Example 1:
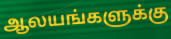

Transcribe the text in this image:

ஆலயங்களுக்கு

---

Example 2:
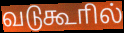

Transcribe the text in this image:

வடுகூரில்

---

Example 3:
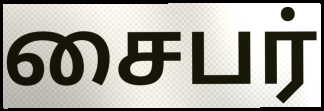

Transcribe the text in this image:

சைபர்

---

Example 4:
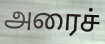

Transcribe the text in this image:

அரைச்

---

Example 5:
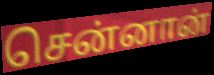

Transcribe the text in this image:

சென்னான்